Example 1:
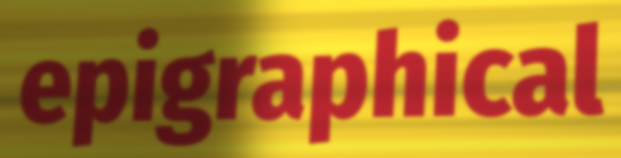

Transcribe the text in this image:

epigraphical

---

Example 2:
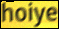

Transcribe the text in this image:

hoiye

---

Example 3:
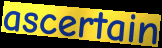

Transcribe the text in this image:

ascertain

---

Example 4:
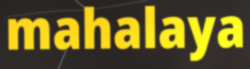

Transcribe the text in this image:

mahalaya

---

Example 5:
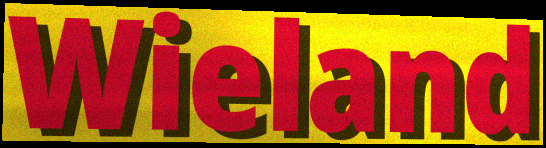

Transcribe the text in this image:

Wieland